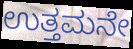
ಉತ್ತಮನೇ